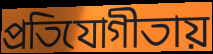
প্রতিযোগীতায়